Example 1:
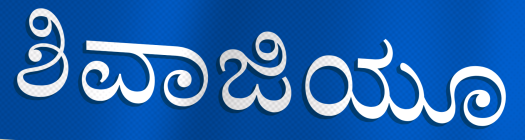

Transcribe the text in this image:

ಶಿವಾಜಿಯೂ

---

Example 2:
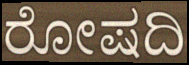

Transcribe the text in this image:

ರೋಷದಿ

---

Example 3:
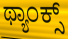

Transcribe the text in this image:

ಥ್ಯಾಂಕ್ಸ್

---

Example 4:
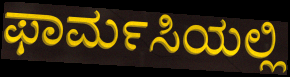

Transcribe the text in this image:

ಫಾರ್ಮಸಿಯಲ್ಲಿ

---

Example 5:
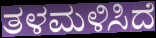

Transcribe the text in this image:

ತಳಮಳಿಸಿದೆ